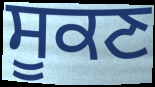
ਸੂਕਣ